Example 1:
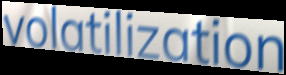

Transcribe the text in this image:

volatilization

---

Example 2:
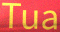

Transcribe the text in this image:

Tua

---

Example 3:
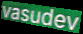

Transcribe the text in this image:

vasudev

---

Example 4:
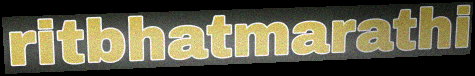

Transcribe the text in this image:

ritbhatmarathi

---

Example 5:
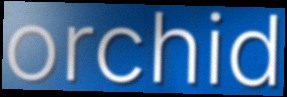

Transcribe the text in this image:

orchid